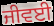
ਜੀਵਈ